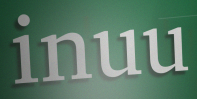
inuu